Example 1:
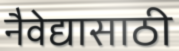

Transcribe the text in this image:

नैवेद्यासाठी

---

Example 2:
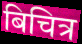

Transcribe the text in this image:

बिचित्र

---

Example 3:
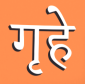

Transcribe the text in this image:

गृहे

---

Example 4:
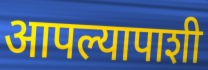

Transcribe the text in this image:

आपल्यापाशी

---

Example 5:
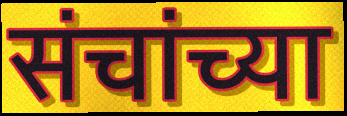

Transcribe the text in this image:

संचांच्या